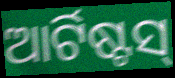
ଆର୍ଟିଷ୍ଟସ୍